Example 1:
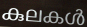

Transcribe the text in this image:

കുലകൾ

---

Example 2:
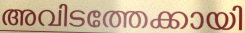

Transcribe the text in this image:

അവിടത്തേക്കായി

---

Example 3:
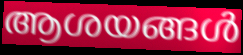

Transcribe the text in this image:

ആശയങ്ങൾ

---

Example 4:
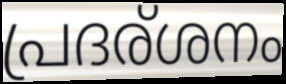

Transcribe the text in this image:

പ്രദര്ശനം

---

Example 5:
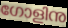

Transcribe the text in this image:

ഗോളിനു